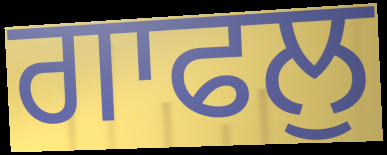
ਗਾਫਲੁ